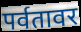
पर्वतावर